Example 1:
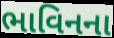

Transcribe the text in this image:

ભાવિનના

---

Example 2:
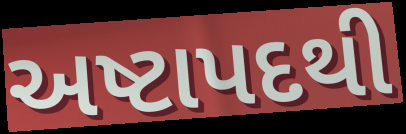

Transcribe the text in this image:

અષ્ટાપદથી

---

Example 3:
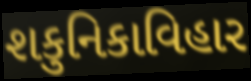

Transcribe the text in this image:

શકુનિકાવિહાર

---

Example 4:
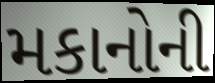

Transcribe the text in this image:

મકાનોની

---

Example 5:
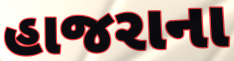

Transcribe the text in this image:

હાજરાના